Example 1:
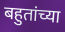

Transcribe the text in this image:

बहुतांच्या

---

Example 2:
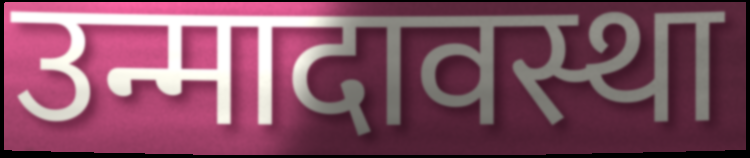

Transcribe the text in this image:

उन्मादावस्था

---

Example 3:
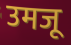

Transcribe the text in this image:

उमजू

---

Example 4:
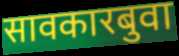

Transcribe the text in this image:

सावकारबुवा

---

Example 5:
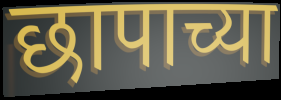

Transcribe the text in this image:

छापाच्या